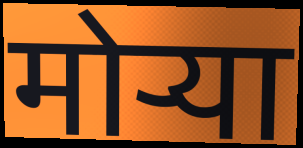
मोऱ्या